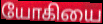
யோகியை